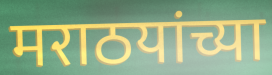
मराठयांच्या